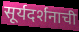
सूर्यदर्शनाची